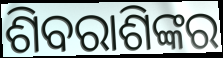
ଶିବରାଶିଙ୍କର